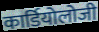
कार्डियोलोजी